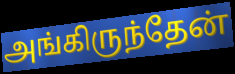
அங்கிருந்தேன்